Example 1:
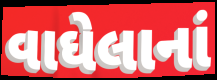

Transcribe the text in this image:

વાઘેલાનાં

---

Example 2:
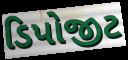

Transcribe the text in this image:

ડિપોજીટ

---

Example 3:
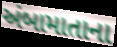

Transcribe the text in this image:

અંબામાતાના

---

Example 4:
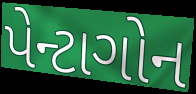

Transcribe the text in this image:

પેન્ટાગોન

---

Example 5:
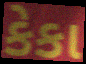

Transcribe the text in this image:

કેકા